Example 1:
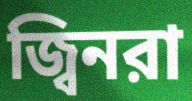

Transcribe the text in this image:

জ্বিনরা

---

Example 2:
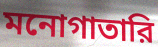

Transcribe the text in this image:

মনোগাতারি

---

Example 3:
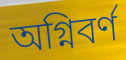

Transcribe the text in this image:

অগ্নিবর্ণ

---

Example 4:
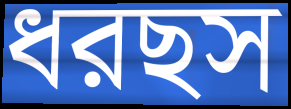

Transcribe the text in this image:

ধরছস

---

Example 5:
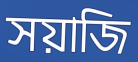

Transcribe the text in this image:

সয়াজি